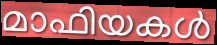
മാഫിയകൾ